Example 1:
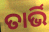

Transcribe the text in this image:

ତାର୍ଭି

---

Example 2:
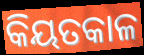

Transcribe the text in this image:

କିୟତକାଳ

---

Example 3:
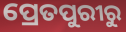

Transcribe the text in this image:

ପ୍ରେତପୁରୀରୁ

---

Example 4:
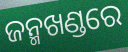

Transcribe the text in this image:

ଜନ୍ମଖଣ୍ଡରେ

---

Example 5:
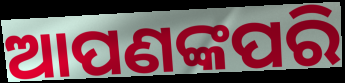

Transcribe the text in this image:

ଆପଣଙ୍କପରି